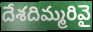
దేశదిమ్మరివై